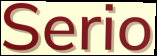
Serio